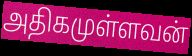
அதிகமுள்ளவன்